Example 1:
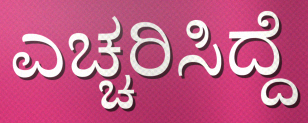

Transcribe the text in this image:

ಎಚ್ಚರಿಸಿದ್ದೆ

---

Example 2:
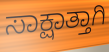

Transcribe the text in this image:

ಸಾಕ್ಷಾತ್ತಾಗಿ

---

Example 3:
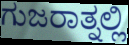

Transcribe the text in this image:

ಗುಜರಾತ್ನಲ್ಲಿ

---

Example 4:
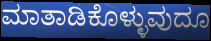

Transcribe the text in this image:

ಮಾತಾಡಿಕೊಳ್ಳುವುದೂ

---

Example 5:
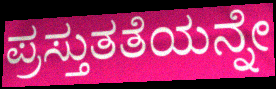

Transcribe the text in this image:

ಪ್ರಸ್ತುತತೆಯನ್ನೇ